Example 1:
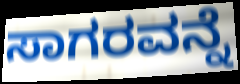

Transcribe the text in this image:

ಸಾಗರವನ್ನೆ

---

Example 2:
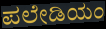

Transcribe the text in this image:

ಪಲೇಡಿಯಂ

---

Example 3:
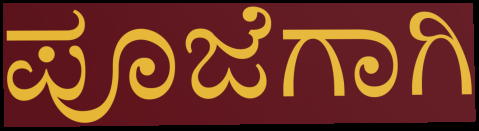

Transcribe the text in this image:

ಪೂಜೆಗಾಗಿ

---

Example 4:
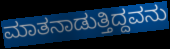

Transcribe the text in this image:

ಮಾತನಾಡುತ್ತಿದ್ದವನು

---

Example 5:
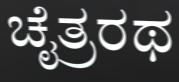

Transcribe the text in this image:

ಚೈತ್ರರಥ